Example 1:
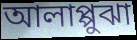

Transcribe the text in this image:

আলাপ্পুঝা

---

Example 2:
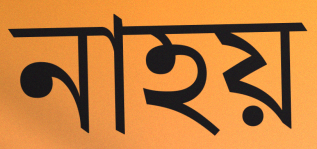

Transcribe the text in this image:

নাহয়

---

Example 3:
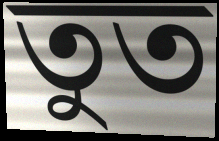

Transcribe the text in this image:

তুত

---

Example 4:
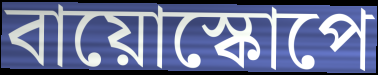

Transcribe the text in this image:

বায়োস্কোপে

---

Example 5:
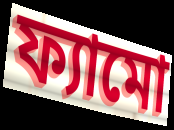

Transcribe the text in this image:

ফ্যামো